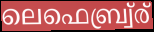
ലെഫെബ്ര്വ്ര്